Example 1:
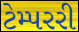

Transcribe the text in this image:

ટેમ્પરરી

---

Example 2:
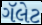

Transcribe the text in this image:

ગૅલેટ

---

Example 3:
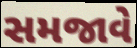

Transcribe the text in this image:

સમજાવે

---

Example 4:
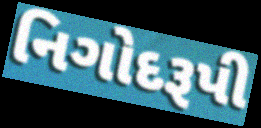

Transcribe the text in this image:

નિગોદરૂપી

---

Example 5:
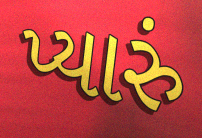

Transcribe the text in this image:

પ્યારું